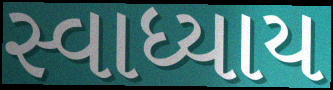
સ્વાધ્યાય